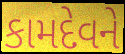
કામદેવને